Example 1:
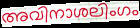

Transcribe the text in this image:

അവിനാശലിംഗം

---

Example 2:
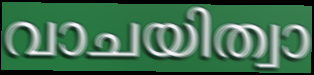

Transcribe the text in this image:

വാചയിത്വാ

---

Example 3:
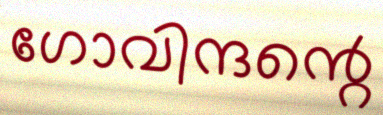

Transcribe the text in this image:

ഗോവിന്ദന്റെ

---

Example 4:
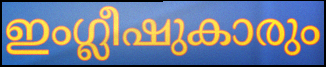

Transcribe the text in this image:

ഇംഗ്ലീഷുകാരും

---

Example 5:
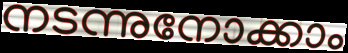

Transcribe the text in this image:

നടന്നുനോക്കാം